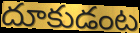
దూకుడంట